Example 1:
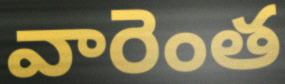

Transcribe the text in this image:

వారెంత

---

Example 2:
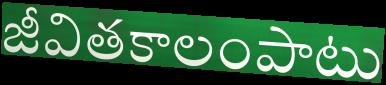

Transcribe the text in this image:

జీవితకాలంపాటు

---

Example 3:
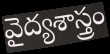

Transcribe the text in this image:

వైద్యశాస్త్రం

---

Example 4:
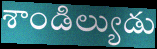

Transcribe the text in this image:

శాండిల్యుడు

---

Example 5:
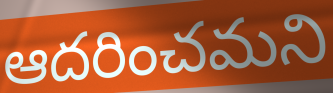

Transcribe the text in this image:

ఆదరించమని